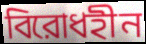
বিরোধহীন